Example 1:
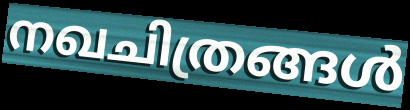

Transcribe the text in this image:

നഖചിത്രങ്ങൾ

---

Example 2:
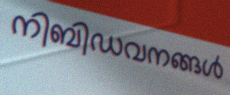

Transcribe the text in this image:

നിബിഡവനങ്ങൾ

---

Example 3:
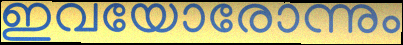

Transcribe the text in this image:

ഇവയോരോന്നും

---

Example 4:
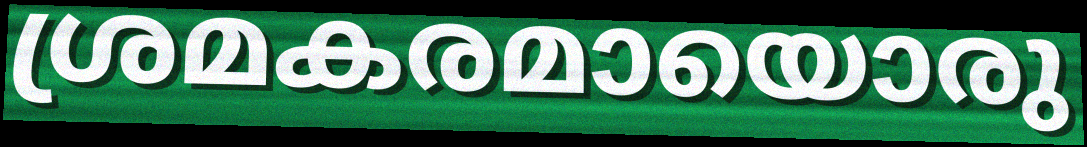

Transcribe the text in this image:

ശ്രമകരമായൊരു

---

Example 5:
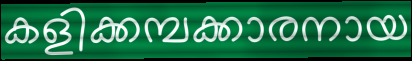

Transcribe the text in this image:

കളിക്കമ്പക്കാരനായ